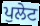
ਪੁਲੇਟ